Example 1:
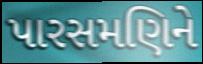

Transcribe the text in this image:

પારસમણિને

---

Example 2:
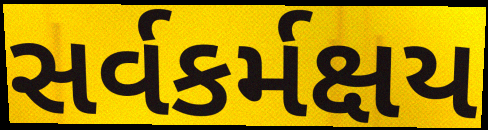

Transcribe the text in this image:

સર્વકર્મક્ષય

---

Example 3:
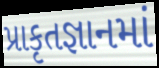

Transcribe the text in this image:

પ્રાકૃતજ્ઞાનમાં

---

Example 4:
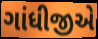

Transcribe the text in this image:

ગાંધીજીએ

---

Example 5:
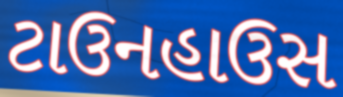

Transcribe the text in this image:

ટાઉનહાઉસ